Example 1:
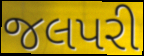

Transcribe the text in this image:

જલપરી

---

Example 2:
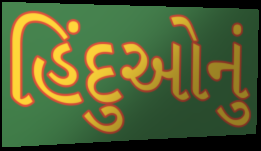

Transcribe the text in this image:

હિંદુઓનું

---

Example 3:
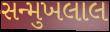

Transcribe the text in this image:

સન્મુખલાલ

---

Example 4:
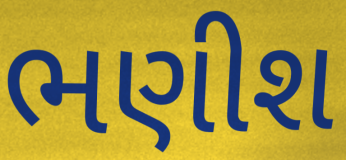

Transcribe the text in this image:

ભણીશ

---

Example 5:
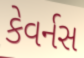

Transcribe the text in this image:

કેવર્નસ